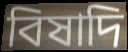
বিষাদি